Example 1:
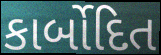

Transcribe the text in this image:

કાર્બોદિત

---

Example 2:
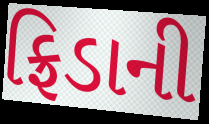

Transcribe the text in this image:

ફ્રિડાની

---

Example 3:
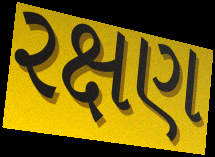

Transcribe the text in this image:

રક્ષણ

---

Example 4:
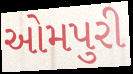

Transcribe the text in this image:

ઓમપુરી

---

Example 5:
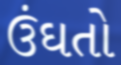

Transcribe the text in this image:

ઉંઘતો